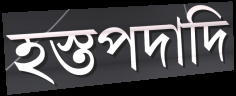
হস্তপদাদি